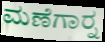
ಮಣೆಗಾರ್‍ನ